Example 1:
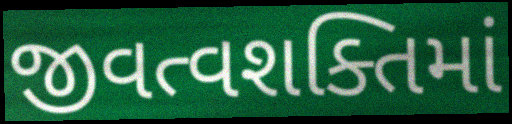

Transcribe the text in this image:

જીવત્વશક્તિમાં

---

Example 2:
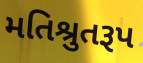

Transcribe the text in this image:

મતિશ્રુતરૂપ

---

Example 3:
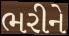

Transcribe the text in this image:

ભરીને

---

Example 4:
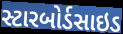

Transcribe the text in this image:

સ્ટારબોર્ડસાઇડ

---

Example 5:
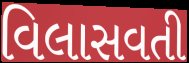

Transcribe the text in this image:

વિલાસવતી